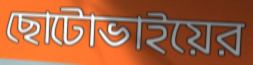
ছোটোভাইয়ের